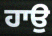
ਹਾਉ